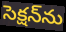
సెక్షన్‌ను